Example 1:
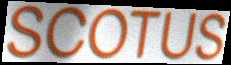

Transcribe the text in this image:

SCOTUS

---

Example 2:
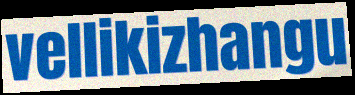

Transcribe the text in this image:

vellikizhangu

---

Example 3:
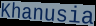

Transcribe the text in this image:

Khanusia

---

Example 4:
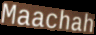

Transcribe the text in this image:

Maachah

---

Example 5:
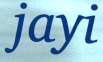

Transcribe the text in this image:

jayi